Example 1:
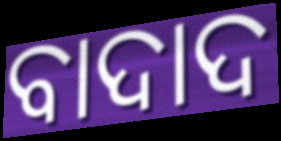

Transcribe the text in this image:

ବାଦାଦ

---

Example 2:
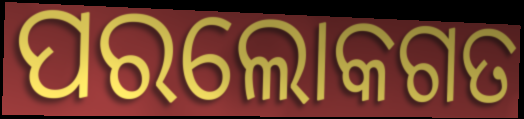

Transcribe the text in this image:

ପରଲୋକଗତ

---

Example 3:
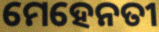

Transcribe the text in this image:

ମେହେନତୀ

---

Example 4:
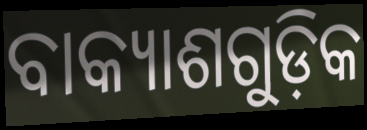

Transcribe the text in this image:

ବାକ୍ୟାଶଗୁଡ଼ିକ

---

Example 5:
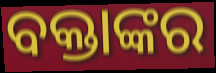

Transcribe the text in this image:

ବକ୍ତାଙ୍କର